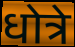
धोत्रे